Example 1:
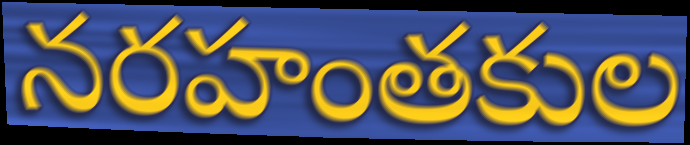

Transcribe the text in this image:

నరహంతకుల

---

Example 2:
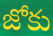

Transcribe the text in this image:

జోకు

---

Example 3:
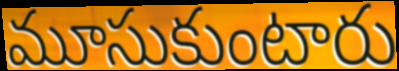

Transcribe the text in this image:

మూసుకుంటారు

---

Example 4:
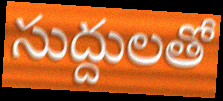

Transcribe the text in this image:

సుద్దులతో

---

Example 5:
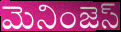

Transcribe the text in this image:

మెనింజెస్